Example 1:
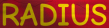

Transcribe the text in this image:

RADIUS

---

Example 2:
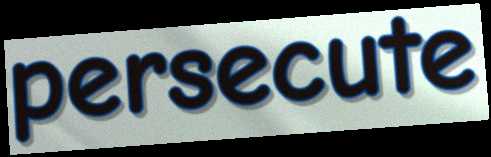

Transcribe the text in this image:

persecute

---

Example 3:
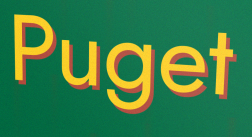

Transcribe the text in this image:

Puget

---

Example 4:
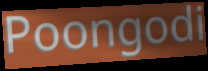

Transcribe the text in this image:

Poongodi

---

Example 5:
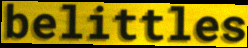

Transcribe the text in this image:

belittles